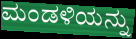
ಮಂಡಳಿಯನ್ನು